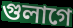
গুলাগে